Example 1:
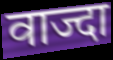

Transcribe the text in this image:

वाज्दा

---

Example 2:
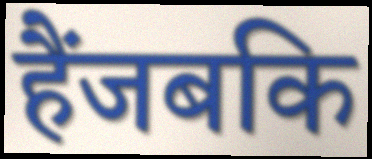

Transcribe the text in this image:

हैंजबकि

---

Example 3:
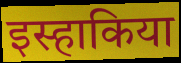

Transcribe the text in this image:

इस्हाकिया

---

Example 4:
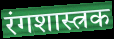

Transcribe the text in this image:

रंगशास्त्रक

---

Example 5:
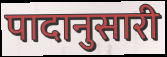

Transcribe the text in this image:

पादानुसारी